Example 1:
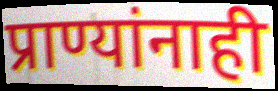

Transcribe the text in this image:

प्राण्यांनाही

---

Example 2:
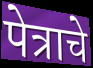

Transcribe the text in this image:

पेत्राचे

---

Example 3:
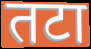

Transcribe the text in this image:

तटा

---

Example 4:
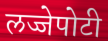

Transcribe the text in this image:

लज्जेपोटी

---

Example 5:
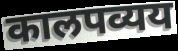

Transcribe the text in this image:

कालपव्यय